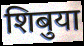
शिबुया